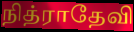
நித்ராதேவி